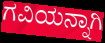
ಗವಿಯನ್ನಾಗಿ